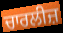
ਚਾਰਲੀਜ਼